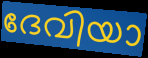
ദേവിയാ